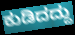
ಕುಡಿದದ್ದು